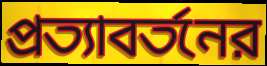
প্রত্যাবর্তনের